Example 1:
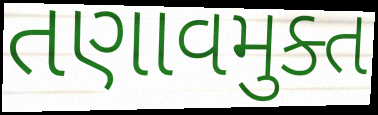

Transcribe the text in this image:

તણાવમુક્ત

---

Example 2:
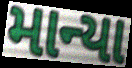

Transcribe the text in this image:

માન્યા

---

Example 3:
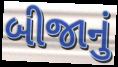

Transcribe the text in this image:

બીજાનું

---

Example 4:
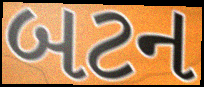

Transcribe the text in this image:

બટન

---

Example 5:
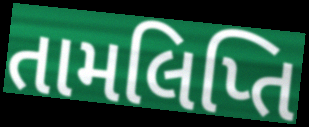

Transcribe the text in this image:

તામલિપ્તિ